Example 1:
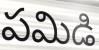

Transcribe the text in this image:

పమిడి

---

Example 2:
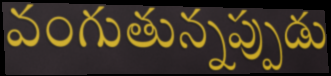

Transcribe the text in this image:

వంగుతున్నప్పుడు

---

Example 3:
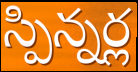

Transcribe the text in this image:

స్పిన్నర్ల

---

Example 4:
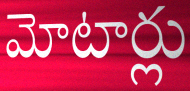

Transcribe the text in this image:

మోటార్లు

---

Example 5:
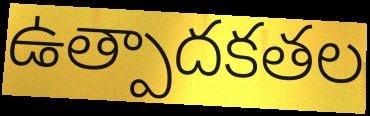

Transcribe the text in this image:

ఉత్పాదకతల